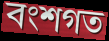
বংশগত